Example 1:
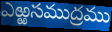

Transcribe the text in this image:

ఎఱ్ఱసముద్రము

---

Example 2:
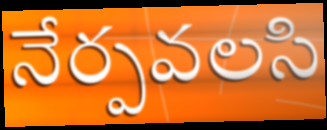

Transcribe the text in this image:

నేర్పవలసి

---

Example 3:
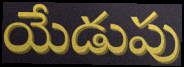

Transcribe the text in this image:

యేడుపు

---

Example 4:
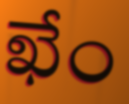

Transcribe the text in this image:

ఖేం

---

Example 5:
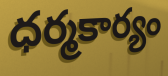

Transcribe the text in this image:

ధర్మకార్యం